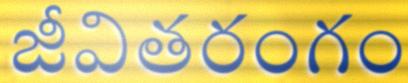
జీవితరంగం